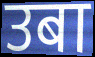
उबा